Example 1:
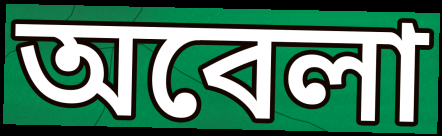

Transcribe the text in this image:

অবেলা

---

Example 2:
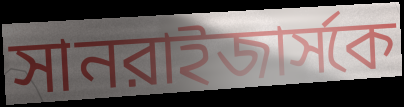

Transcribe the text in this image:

সানরাইজার্সকে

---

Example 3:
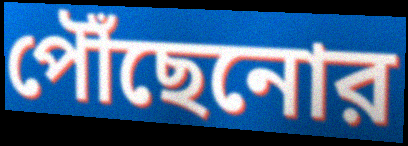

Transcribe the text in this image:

পৌঁছেনোর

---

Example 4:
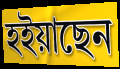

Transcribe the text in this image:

হইয়াছেন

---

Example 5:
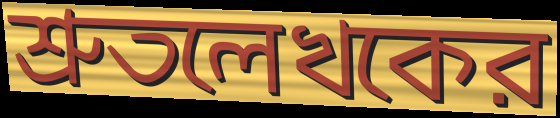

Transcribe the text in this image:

শ্রুতলেখকের